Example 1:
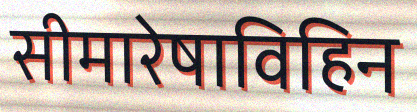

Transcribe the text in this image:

सीमारेषाविहिन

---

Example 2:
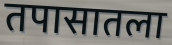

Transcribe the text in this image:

तपासातला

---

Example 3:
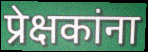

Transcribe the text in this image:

प्रेक्षकांना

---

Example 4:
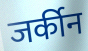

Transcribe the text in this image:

जर्कीन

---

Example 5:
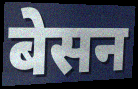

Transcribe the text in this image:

बेसन